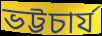
ভট্টচাৰ্য